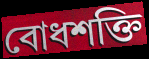
বোধশক্তি